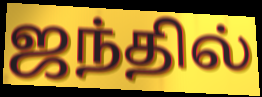
ஜந்தில்